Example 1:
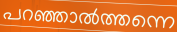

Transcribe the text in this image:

പറഞ്ഞാൽത്തന്നെ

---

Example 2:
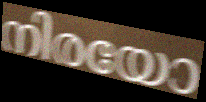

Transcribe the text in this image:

നിരയോ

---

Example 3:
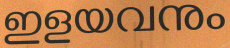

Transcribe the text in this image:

ഇളയവനും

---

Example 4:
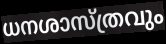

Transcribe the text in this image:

ധനശാസ്ത്രവും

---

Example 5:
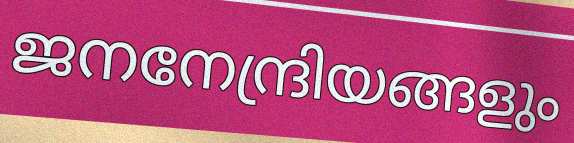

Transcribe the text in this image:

ജനനേന്ദ്രിയങ്ങളും